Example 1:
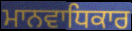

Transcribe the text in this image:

ਮਾਨਵਾਧਿਕਾਰ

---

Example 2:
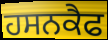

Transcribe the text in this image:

ਹਸਨਕੈਫ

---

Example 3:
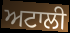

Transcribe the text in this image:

ਅਟਾਲੀ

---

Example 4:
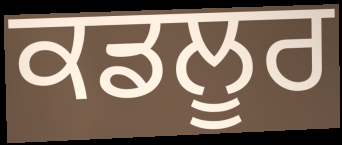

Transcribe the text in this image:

ਕਡਲੂਰ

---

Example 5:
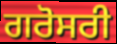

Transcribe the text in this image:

ਗਰੋਸਰੀ